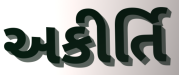
અકીર્તિ